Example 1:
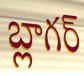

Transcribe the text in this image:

బ్లాగర్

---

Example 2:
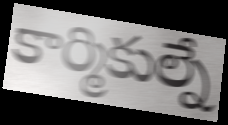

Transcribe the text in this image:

కార్మికుల్నే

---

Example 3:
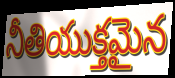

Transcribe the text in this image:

నీతియుక్తమైన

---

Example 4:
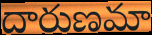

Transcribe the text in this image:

దారుణమా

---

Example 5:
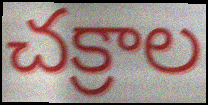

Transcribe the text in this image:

చక్రాల